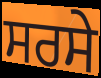
ਸਰਸੇ